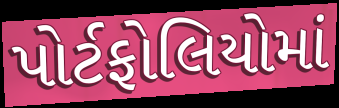
પોર્ટફોલિયોમાં